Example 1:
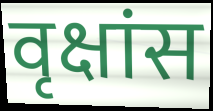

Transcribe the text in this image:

वृक्षांस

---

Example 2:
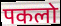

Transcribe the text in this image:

पकलो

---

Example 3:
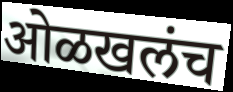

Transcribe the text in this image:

ओळखलंच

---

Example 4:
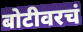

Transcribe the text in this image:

बोटीवरचं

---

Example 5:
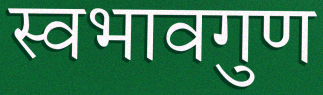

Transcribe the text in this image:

स्वभावगुण